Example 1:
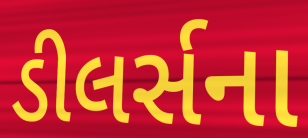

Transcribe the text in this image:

ડીલર્સના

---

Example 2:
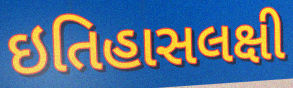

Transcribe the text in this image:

ઇતિહાસલક્ષી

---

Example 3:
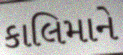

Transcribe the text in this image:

કાલિમાને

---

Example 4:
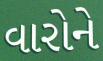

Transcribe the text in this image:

વારોને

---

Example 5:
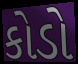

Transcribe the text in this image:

કોડો